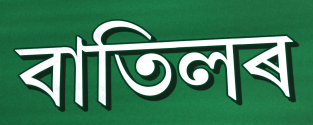
বাতিলৰ